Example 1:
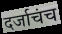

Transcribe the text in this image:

दर्जाचंच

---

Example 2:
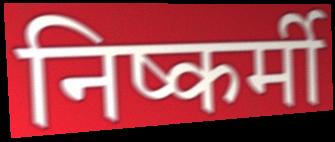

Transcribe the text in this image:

निष्कर्मी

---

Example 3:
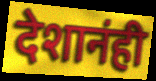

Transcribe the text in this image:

देशानंही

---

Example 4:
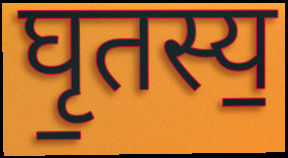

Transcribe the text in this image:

घृ॒तस्य॒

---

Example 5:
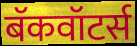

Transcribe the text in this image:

बॅकवॉटर्स